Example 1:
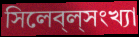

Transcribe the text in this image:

সিলেব্‌ল্‌সংখ্যা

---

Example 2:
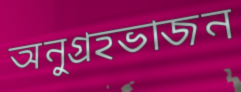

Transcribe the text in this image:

অনুগ্রহভাজন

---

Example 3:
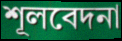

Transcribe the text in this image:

শূলবেদনা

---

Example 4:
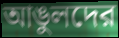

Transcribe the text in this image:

আঙুলদের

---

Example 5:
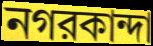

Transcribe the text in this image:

নগরকান্দা